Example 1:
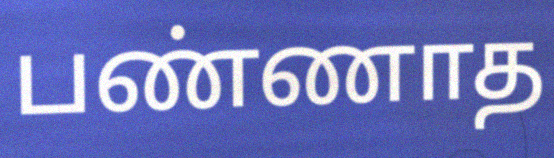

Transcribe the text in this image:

பண்ணாத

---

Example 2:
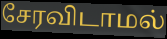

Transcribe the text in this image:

சேரவிடாமல்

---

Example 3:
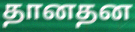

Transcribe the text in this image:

தானதன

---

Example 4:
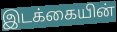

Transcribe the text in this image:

இடக்கையின்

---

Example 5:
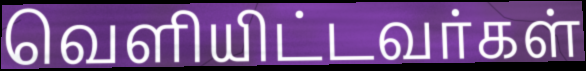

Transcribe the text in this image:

வெளியிட்டவர்கள்